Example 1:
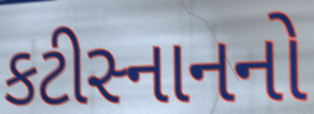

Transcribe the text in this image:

કટીસ્નાનનો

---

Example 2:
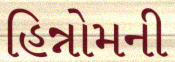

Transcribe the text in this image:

હિન્નોમની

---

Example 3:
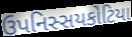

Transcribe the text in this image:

ઉપનિસ્સયકોટિયા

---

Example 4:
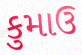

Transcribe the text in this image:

કુમાઉ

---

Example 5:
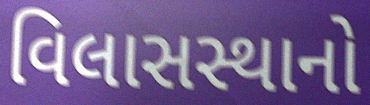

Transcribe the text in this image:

વિલાસસ્થાનો